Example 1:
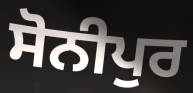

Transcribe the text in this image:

ਸੋਨੀਪੁਰ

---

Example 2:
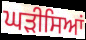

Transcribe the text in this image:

ਘੜੀਸਿਆਂ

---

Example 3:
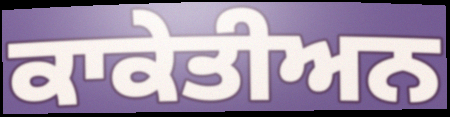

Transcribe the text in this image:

ਕਾਕੇਤੀਅਨ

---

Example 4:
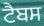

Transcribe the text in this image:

ਟੈਬਸ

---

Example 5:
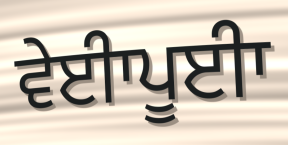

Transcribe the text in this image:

ਵੇਈਾਪੂਈਾ